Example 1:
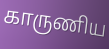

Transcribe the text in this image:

காருணிய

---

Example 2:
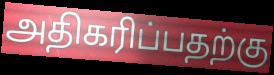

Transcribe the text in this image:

அதிகரிப்பதற்கு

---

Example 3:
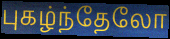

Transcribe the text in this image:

புகழ்ந்தேலோ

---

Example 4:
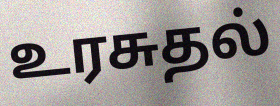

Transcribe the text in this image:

உரசுதல்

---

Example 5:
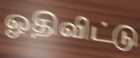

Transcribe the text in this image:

ஓதிவிட்டு